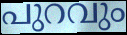
പുറവും